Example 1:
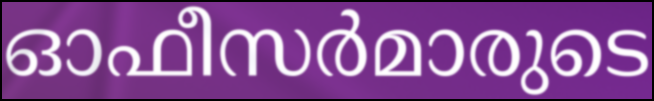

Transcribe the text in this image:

ഓഫീസർമാരുടെ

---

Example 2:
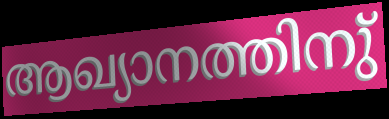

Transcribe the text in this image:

ആഖ്യാനത്തിനു്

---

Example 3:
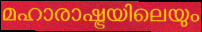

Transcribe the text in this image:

മഹാരാഷ്ട്രയിലെയും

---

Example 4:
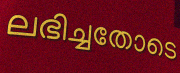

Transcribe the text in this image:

ലഭിച്ചതോടെ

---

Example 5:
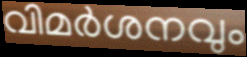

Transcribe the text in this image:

വിമർശനവും